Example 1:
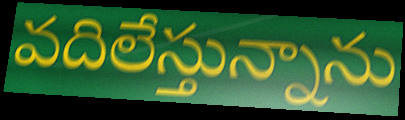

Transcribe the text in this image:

వదిలేస్తున్నాను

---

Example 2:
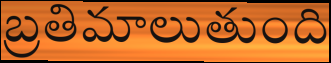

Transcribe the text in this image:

బ్రతిమాలుతుంది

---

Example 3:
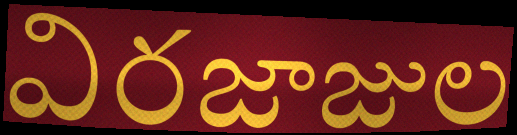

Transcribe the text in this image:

విరజాజుల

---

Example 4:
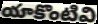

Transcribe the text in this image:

యాకొంటివి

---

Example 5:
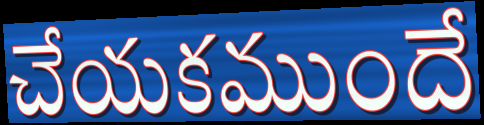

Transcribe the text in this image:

చేయకముందే